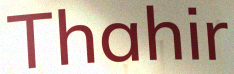
Thahir